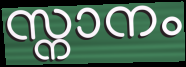
സ്നാനം